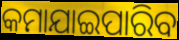
କମାଯାଇପାରିବ